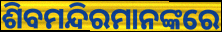
ଶିବମନ୍ଦିରମାନଙ୍କରେ